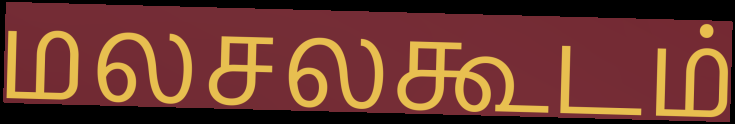
மலசலகூடம்